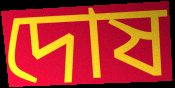
দোষ